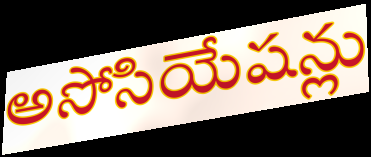
అసోసియేషన్లు